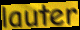
lauter